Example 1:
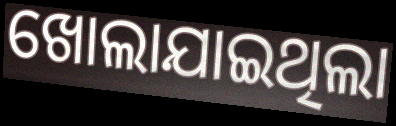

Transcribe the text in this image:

ଖୋଲାଯାଇଥିଲା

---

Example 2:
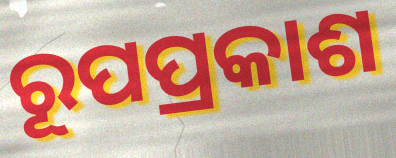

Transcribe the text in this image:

ରୂପପ୍ରକାଶ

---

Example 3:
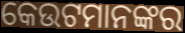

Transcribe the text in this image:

କେଉଟମାନଙ୍କର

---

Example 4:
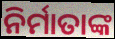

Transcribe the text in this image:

ନିର୍ମାତାଙ୍କ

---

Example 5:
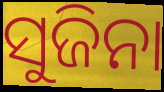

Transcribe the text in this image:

ସୁଜିନା